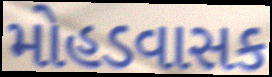
મોહડવાસક